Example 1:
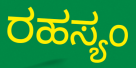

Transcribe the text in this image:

ರಹಸ್ಯಂ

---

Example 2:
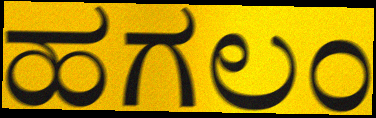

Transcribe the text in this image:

ಹಗಲಂ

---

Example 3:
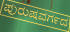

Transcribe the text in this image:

ಪುರುಷವರ್ಗದ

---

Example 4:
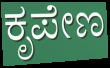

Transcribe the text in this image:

ಕೃಪೇಣ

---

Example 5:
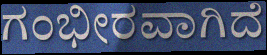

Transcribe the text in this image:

ಗಂಭೀರವಾಗಿದೆ